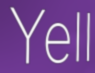
Yell